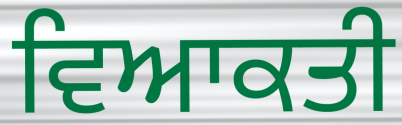
ਵਿਆਕਤੀ